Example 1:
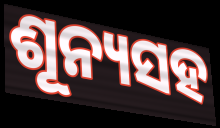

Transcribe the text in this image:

ଶୂନ୍ୟସହ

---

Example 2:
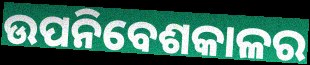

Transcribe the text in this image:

ଉପନିବେଶକାଳର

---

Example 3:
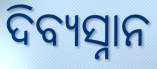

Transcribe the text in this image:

ଦିବ୍ୟସ୍ନାନ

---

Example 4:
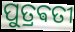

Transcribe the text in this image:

ପୁତ୍ରଵତୀ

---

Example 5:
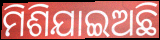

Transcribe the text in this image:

ମିଶିଯାଇଅଛି